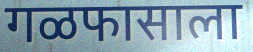
गळफासाला